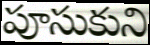
పూసుకుని